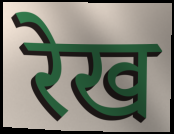
रेख